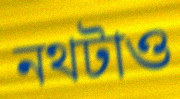
নথটাও